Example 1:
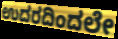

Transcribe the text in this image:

ಉದರದಿಂದಲೇ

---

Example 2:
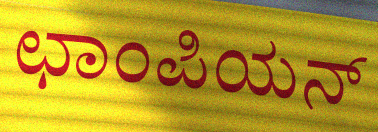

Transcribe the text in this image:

ಛಾಂಪಿಯನ್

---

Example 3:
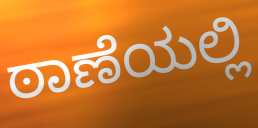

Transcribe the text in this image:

ಠಾಣೆಯಲ್ಲಿ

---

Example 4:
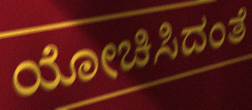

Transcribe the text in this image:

ಯೋಚಿಸಿದಂತೆ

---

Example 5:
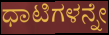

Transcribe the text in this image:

ಧಾಟಿಗಳನ್ನೇ